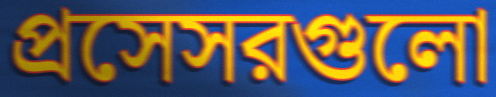
প্রসেসরগুলো